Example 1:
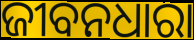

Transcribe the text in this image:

ଜୀବନଧାରା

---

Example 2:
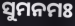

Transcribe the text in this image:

ସୁମନମଃ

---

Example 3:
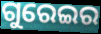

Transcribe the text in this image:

ଗୁରେଇର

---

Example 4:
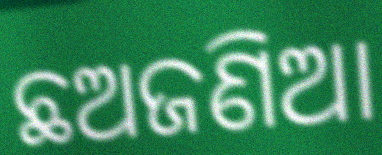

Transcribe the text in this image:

ଛଅଜଣିଆ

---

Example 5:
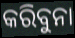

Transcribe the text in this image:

କରିବୁନା